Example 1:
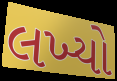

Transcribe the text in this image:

લખ્યો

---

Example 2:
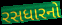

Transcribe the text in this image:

રસધારનો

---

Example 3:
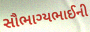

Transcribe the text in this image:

સૌભાગ્યભાઈની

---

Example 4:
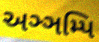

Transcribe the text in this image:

અઞ્ઞમ્પિ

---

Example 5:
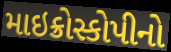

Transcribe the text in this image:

માઇક્રોસ્કોપીનો